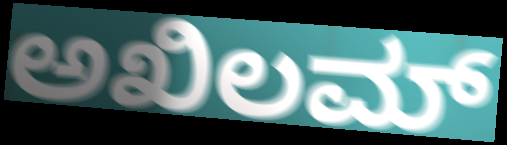
ಅಖಿಲಮ್